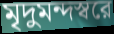
মৃদুমন্দস্বরে